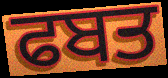
ਫਬਤ